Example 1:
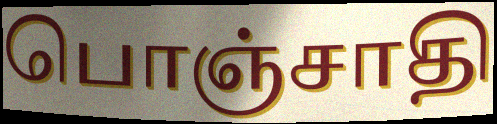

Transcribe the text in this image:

பொஞ்சாதி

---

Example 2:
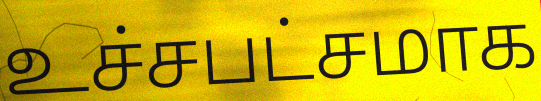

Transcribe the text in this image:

உச்சபட்சமாக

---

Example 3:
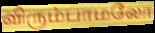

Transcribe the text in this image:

விரும்பாமலோ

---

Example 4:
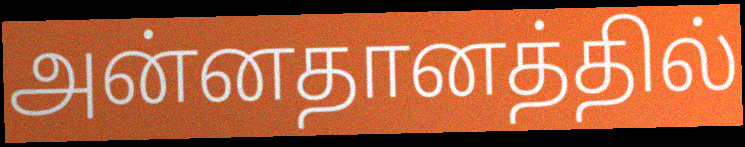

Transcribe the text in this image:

அன்னதானத்தில்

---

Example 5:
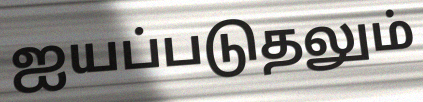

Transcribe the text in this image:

ஐயப்படுதலும்